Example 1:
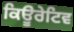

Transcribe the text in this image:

ਕਿਊਰੇਟਿਵ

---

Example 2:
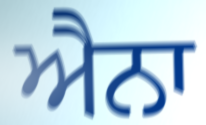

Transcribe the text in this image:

ਐਨਾ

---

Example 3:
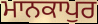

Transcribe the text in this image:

ਮਾਨਕਾਪੁਰ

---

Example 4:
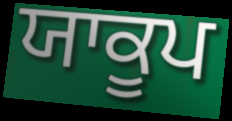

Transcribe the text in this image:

ਯਾਕੂਪ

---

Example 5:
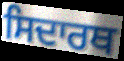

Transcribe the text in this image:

ਸਿਦਾਰਥ